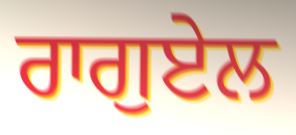
ਰਾਗੁਏਲ